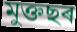
মুক্তছৰ